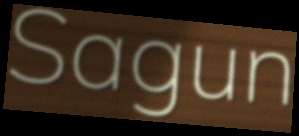
Sagun